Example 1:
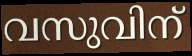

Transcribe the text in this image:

വസുവിന്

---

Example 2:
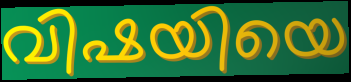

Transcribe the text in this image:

വിഷയിയെ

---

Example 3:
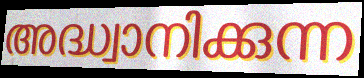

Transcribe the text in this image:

അദ്ധ്വാനിക്കുന്ന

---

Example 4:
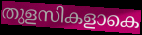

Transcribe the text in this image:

തുളസികളാകെ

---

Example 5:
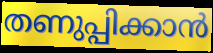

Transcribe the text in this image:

തണുപ്പിക്കാൻ